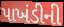
પાખંડીની